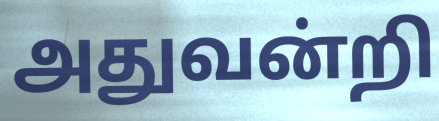
அதுவன்றி